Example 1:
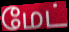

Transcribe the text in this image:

மேட்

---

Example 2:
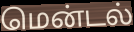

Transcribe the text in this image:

மென்டல்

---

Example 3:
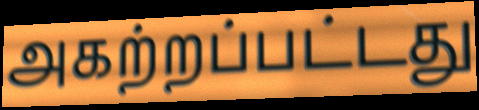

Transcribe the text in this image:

அகற்றப்பட்டது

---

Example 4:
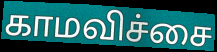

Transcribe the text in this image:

காமவிச்சை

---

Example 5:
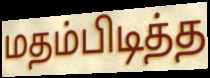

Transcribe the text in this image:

மதம்பிடித்த